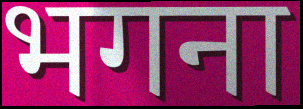
भगना